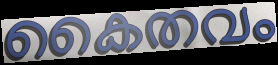
കൈതവം